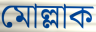
মোল্লাক